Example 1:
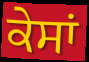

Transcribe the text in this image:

ਕੇਸਾਂ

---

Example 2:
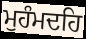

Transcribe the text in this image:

ਮੁਹੰਮਦਹਿ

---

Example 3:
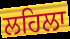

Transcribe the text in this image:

ਲਹਿਲਾ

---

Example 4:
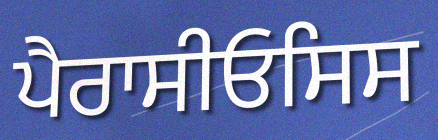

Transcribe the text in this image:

ਪੈਰਾਸੀਓਸਿਸ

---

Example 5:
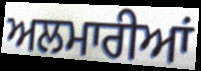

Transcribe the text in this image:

ਅਲਮਾਰੀਆਂ